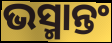
ଭସ୍ମାନ୍ତଂ